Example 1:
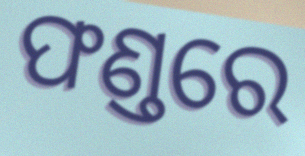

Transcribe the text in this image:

ଫଣ୍ଡରେ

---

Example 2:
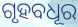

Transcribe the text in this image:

ଗୃହବଧୂର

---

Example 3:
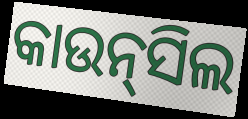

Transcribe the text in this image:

କାଉନ୍‍ସିଲ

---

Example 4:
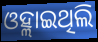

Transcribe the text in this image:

ଓହ୍ଲାଇଥିଲି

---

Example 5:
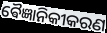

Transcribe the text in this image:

ଵୈଜ୍ଞାନିକୀକରଣ